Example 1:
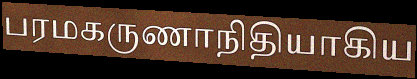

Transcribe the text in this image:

பரமகருணாநிதியாகிய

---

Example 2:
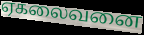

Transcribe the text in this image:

ஏகலைவனை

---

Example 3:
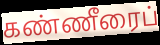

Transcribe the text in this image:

கண்ணீரைப்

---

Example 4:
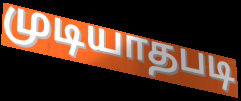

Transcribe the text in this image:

முடியாதபடி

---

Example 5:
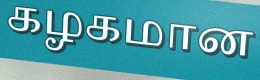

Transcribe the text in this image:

கழகமான